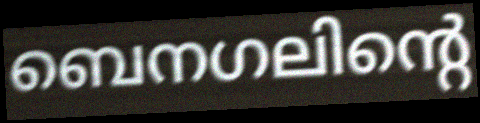
ബെനഗലിന്റെ